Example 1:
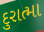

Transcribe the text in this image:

દુરાત્મા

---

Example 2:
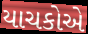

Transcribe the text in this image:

યાચકોએ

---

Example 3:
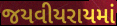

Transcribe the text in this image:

જયવીયરાયમાં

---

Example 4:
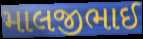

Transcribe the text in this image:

માલજીભાઈ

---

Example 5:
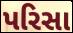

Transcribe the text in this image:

પરિસા